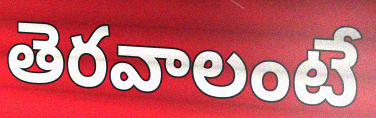
తెరవాలంటే